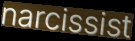
narcissist